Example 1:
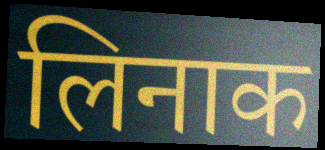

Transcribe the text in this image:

लिनाक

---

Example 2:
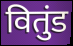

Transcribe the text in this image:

वितुंड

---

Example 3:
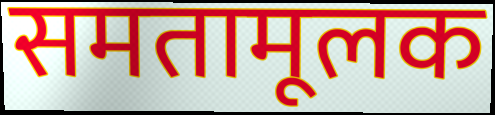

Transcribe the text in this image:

समतामूलक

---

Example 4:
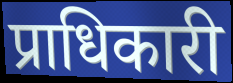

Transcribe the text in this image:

प्राधिकारी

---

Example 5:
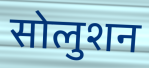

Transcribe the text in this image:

सोलुशन